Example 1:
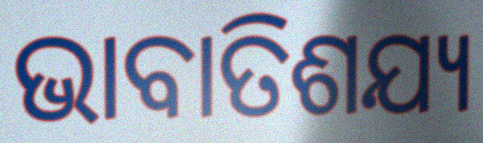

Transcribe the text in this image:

ଭାବାତିଶଯ୍ୟ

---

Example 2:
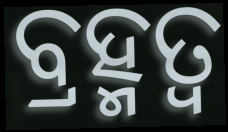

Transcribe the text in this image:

ବ୍ରହ୍ମତ୍ୱ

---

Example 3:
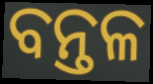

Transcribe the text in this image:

ବନ୍ତଳ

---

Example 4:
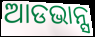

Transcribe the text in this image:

ଆଡଭାନ୍ସ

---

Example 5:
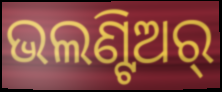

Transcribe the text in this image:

ଭଲଣ୍ଟିଅର୍